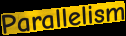
Parallelism